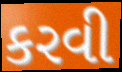
કરવી